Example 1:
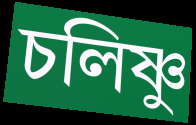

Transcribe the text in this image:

চলিষ্ণু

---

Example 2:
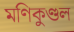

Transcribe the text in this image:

মণিকুণ্ডল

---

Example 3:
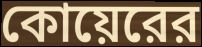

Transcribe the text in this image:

কোয়েরের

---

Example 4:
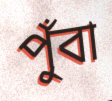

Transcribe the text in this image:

পুঁবা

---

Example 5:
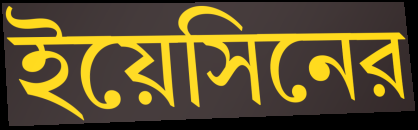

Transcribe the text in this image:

ইয়েসিনের